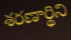
శరణార్థిని